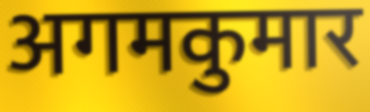
अगमकुमार